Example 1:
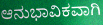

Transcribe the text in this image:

ಆನುಭಾವಿಕವಾಗಿ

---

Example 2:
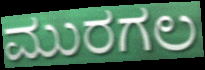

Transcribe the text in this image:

ಮುರಗಲ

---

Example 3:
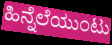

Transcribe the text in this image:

ಹಿನ್ನೆಲೆಯುಂಟು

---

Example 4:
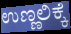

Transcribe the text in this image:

ಉಣ್ಣಲಿಕ್ಕೆ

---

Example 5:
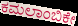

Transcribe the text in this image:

ಕಮಲಾಂಬಿಕೇ